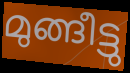
മുങ്ങീട്ടു